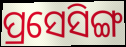
ପ୍ରସେସିଙ୍ଗ